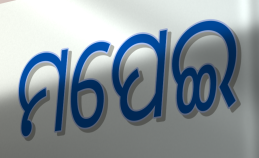
ମପେଇ